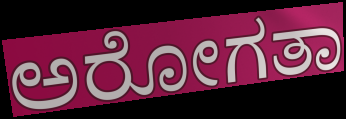
ಅರೋಗತಾ